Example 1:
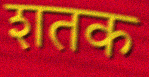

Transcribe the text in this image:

शतक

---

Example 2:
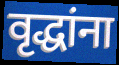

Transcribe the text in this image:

वृद्धांना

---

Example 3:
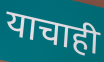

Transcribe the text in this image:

याचाही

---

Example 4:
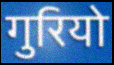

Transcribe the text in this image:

गुरियो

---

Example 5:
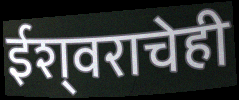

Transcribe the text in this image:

ईश्वराचेही